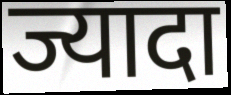
ज्यादा